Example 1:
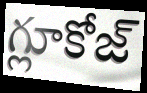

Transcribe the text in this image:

గ్లూకోజ్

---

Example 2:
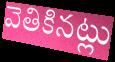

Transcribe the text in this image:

వెతికినట్లు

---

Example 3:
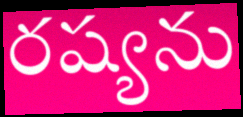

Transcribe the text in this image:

రష్యను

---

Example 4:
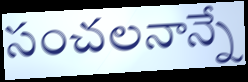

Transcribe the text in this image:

సంచలనాన్నే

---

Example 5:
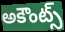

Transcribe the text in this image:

అకౌంట్స్